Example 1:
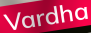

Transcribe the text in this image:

Vardha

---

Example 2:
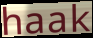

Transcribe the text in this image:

haak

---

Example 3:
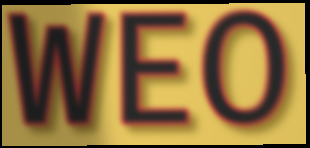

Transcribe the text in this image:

WEO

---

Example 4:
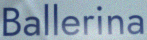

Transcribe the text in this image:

Ballerina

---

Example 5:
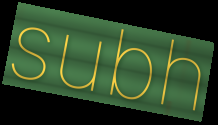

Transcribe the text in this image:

subh